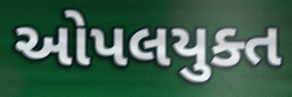
ઓપલયુક્ત